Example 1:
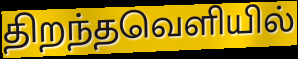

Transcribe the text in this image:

திறந்தவெளியில்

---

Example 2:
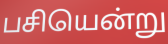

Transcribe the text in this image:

பசியென்று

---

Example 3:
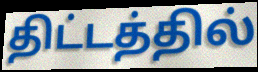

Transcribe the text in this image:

திட்டத்தில்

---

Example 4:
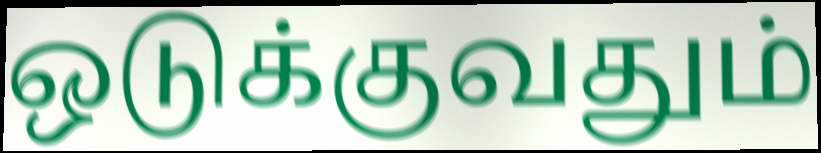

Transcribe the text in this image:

ஒடுக்குவதும்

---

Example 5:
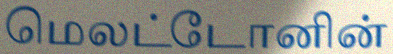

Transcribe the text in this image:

மெலட்டோனின்